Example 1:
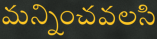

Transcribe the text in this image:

మన్నించవలసి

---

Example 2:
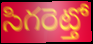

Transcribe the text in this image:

సిగరెట్తో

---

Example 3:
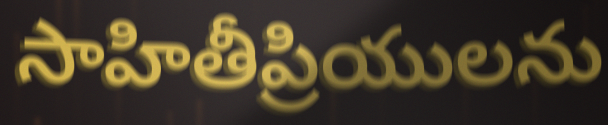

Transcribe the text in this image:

సాహితీప్రియులను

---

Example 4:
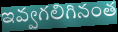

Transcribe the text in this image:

ఇవ్వగలిగినంత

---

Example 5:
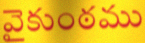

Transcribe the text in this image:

వైకుంఠము